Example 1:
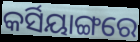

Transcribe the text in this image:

କର୍ସିୟାଙ୍ଗରେ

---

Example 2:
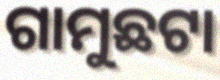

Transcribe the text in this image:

ଗାମୁଛଟା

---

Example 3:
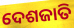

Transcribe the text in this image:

ଦେଶଜାତି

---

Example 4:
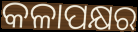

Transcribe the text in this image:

କଳାପକ୍ଷର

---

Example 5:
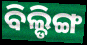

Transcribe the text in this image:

ବିଲ୍ଡିଙ୍ଗ